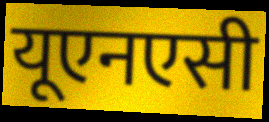
यूएनएसी